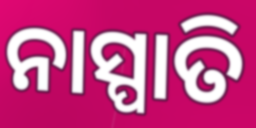
ନାସ୍ପାତି